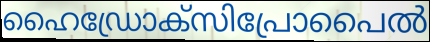
ഹൈഡ്രോക്സിപ്രോപൈൽ